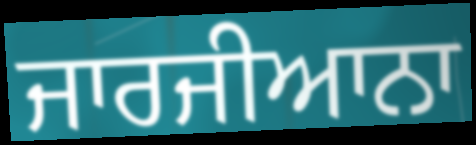
ਜਾਰਜੀਆਨਾ